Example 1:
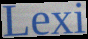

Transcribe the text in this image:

Lexi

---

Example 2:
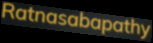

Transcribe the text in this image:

Ratnasabapathy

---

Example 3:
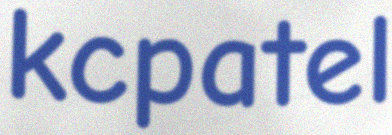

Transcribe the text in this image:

kcpatel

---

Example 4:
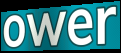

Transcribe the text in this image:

ower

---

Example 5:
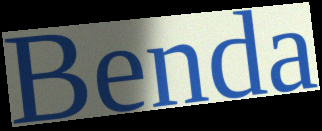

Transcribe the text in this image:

Benda